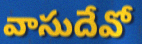
వాసుదేవో